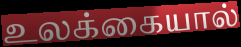
உலக்கையால்